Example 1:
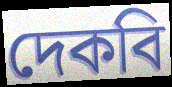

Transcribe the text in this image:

দেকবি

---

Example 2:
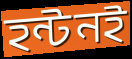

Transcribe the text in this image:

হন্টনই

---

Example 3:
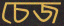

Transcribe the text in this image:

চেজ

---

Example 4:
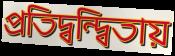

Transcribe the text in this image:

প্রতিদ্বন্দ্বিতায়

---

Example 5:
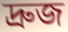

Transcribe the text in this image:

দ্রুজ